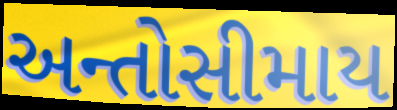
અન્તોસીમાય